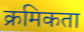
क्रमिकता